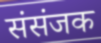
संसंजक